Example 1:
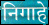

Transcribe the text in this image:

निगाहे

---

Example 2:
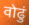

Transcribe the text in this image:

वोढुं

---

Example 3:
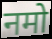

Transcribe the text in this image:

नमो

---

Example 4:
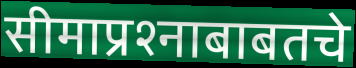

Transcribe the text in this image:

सीमाप्रश्नाबाबतचे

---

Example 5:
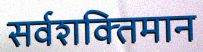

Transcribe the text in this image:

सर्वशक्‍तिमान